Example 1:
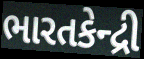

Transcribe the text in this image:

ભારતકેન્દ્રી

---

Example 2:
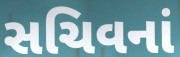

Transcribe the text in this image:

સચિવનાં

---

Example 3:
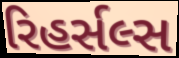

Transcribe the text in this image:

રિહર્સલ્સ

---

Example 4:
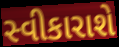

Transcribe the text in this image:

સ્વીકારાશે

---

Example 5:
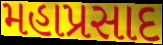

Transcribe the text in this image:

મહાપ્રસાદ